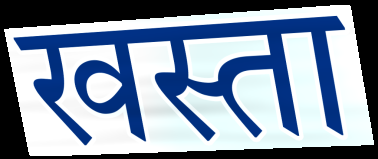
खस्ता